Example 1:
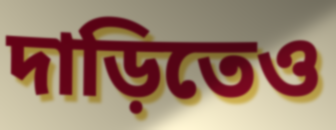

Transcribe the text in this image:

দাড়িতেও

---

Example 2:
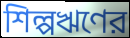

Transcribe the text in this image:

শিল্পঋণের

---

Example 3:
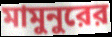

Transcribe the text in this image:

মামুনুরের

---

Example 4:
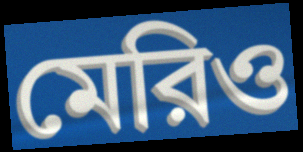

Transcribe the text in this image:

মেরিও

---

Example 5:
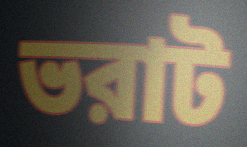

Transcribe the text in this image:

ভরাট